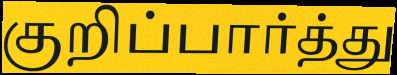
குறிப்பார்த்து